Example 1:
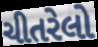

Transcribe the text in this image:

ચીતરેલો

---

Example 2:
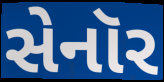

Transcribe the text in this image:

સેનૉર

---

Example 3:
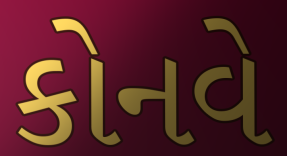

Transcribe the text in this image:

કોનવે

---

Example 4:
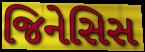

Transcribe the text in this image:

જિનેસિસ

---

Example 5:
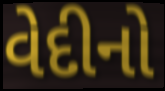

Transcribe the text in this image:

વેદીનો